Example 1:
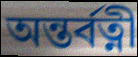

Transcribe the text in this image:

অন্তর্বত্নী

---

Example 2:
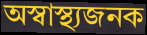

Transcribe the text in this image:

অস্বাস্থ্যজনক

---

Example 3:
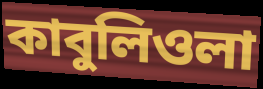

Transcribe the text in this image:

কাবুলিওলা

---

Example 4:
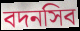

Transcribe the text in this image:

বদনসিব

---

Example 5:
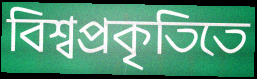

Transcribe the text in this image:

বিশ্বপ্রকৃতিতে